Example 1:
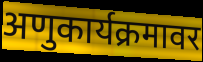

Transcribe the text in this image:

अणुकार्यक्रमावर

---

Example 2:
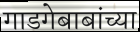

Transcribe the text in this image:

गाडगेबाबांच्या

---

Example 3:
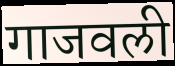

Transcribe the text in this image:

गाजवली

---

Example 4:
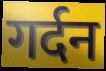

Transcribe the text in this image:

गर्दन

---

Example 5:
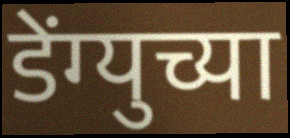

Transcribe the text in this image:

डेंग्युच्या